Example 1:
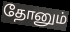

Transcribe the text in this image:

தோனும்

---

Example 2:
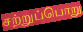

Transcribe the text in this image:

சற்றுப்பொறு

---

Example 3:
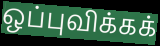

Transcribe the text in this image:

ஒப்புவிக்கக்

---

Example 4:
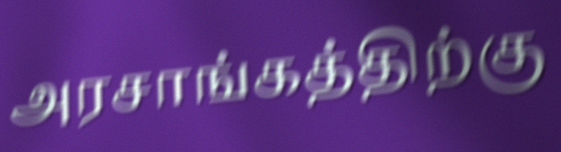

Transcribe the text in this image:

அரசாங்கத்திற்கு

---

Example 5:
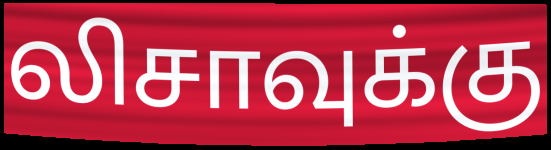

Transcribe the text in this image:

லிசாவுக்கு